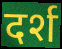
दर्श